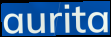
aurita